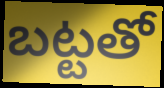
బట్టతో